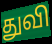
துவி